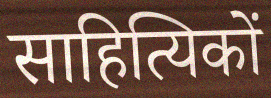
साहित्यिकों